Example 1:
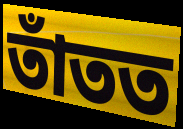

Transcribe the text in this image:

তাঁতত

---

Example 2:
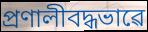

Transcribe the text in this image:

প্ৰণালীবদ্ধভাৱে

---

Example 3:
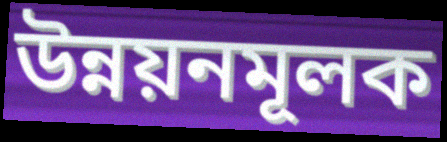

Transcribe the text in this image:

উন্নয়নমূলক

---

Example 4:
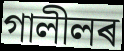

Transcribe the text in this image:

গালীলৰ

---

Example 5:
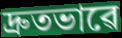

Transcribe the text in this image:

দ্ৰুতভাৱে